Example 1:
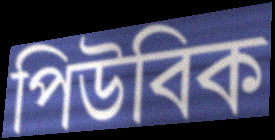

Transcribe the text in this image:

পিউবিক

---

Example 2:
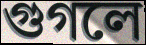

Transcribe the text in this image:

গুগলে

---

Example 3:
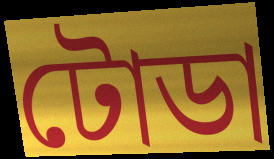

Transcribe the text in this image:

টোডা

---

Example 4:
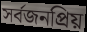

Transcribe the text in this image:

সর্বজনপ্রিয়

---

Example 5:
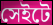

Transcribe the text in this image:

সেইটে